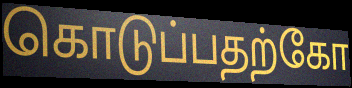
கொடுப்பதற்கோ